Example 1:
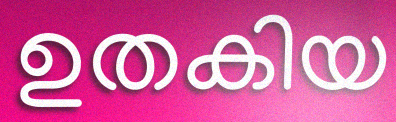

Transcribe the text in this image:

ഉതകിയ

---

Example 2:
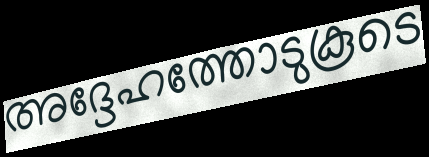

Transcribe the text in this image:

അദ്ദേഹത്തോടുകൂടെ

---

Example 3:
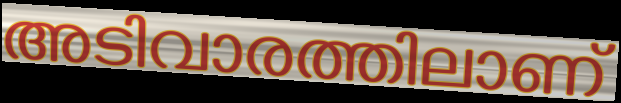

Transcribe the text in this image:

അടിവാരത്തിലാണ്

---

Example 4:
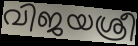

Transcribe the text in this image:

വിജയശ്രീ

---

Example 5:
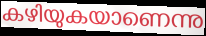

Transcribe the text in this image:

കഴിയുകയാണെന്നു